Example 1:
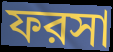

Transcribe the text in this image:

ফরসা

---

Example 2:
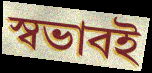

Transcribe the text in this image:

স্বভাবই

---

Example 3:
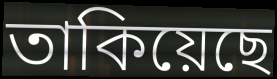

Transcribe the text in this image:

তাকিয়েছে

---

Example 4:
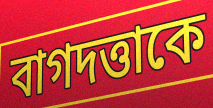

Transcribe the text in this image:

বাগদত্তাকে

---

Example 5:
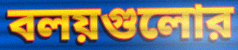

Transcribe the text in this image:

বলয়গুলোর